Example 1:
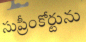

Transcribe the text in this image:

సుప్రీంకోర్టును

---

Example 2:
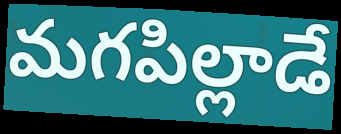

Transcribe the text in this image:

మగపిల్లాడే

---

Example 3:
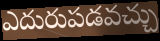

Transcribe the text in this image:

ఎదురుపడవచ్చు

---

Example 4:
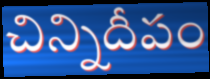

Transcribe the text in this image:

చిన్నిదీపం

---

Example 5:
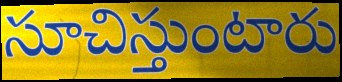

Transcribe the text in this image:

సూచిస్తుంటారు